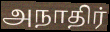
அநாதிர்